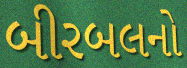
બીરબલનો